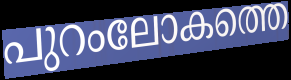
പുറംലോകത്തെ